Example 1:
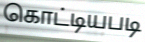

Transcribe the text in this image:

கொட்டியபடி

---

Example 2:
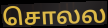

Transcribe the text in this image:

சொலல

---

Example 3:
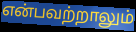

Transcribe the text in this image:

என்பவற்றாலும்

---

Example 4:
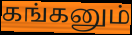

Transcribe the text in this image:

கங்கனும்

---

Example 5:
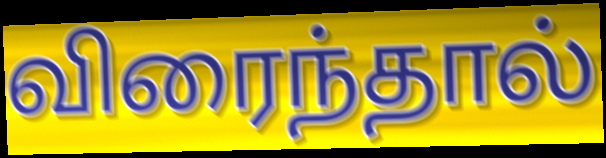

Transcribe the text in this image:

விரைந்தால்